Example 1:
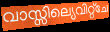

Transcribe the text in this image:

വാസ്സില്യെവിറ്റ്ചേ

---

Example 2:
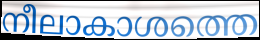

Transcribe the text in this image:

നീലാകാശത്തെ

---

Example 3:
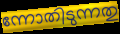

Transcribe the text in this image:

ന്നോതിടുന്നതു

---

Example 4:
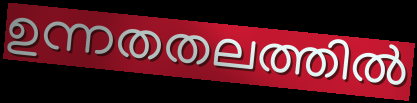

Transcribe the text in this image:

ഉന്നതതലത്തിൽ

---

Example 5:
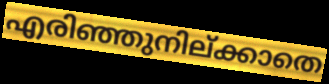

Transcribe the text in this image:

എരിഞ്ഞുനില്ക്കാതെ